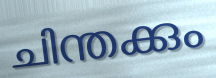
ചിന്തക്കും